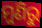
ମୁଣିରୁ